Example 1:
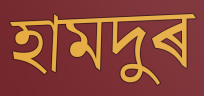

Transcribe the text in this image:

হামদুৰ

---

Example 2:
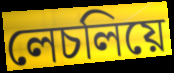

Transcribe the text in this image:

লেচলিয়ে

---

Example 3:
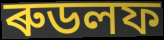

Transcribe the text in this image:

ৰুডলফ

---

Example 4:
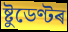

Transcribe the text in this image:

ষ্টুডেণ্টৰ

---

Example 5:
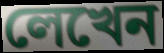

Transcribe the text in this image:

লেখেন